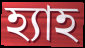
হ্যাহ